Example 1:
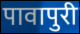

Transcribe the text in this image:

पावापुरी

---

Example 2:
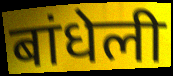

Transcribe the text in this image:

बांधेली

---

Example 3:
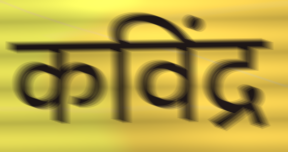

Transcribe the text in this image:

कविंद्र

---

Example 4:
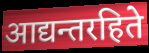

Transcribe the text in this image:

आद्यन्तरहिते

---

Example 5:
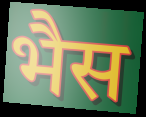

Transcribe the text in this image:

भैस